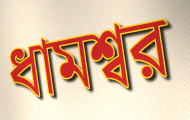
ধামশ্বর